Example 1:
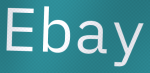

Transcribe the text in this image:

Ebay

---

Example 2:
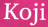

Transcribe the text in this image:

Koji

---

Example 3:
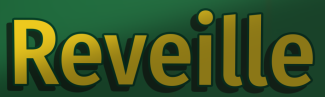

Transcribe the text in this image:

Reveille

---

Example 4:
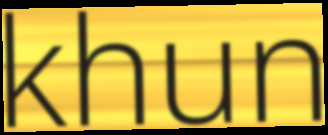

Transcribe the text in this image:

khun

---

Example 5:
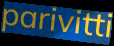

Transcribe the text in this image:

parivitti